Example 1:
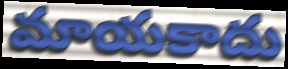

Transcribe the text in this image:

మాయకాదు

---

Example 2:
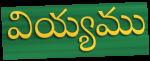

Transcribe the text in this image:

వియ్యము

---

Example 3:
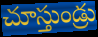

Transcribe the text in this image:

చూస్తుండ్రు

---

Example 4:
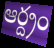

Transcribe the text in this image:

ఆర్ద్రం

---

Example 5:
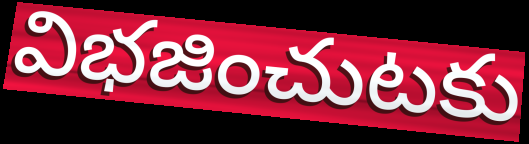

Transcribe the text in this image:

విభజించుటకు